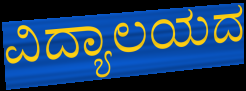
ವಿದ್ಯಾಲಯದ